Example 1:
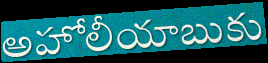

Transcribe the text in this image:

అహోలీయాబుకు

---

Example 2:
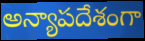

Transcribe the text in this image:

అన్యాపదేశంగా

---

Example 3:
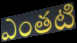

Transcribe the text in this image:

ఎంతటి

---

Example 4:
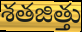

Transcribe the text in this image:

శతజిత్తు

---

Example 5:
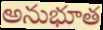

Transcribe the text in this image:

అనుభూత